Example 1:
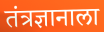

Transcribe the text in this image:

तंत्रज्ञानाला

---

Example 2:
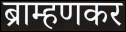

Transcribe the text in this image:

ब्राम्हणकर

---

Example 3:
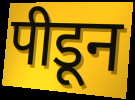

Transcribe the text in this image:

पीडून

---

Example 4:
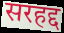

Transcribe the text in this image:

सरहद्द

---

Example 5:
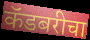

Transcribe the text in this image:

कॅडबरीचा